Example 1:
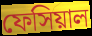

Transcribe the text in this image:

ফেসিয়াল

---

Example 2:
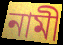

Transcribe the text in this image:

নামী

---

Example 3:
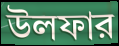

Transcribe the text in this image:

উলফার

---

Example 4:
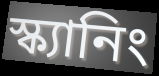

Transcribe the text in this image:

স্ক্যানিং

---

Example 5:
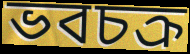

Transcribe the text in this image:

ভবচক্র